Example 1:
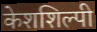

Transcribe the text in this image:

केशशिल्पी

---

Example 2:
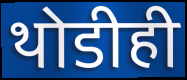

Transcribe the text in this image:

थोडीही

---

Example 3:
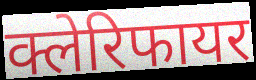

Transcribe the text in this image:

क्लेरिफायर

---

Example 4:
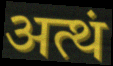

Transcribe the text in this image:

अत्थं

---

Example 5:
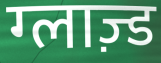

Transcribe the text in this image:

ग्लाज़्ड